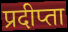
प्रदीप्ता